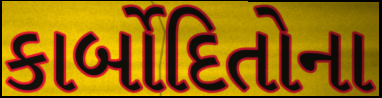
કાર્બોદિતોના